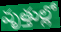
వృత్తుల్లో